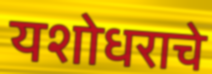
यशोधराचे